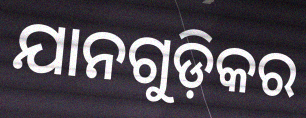
ଯାନଗୁଡ଼ିକର